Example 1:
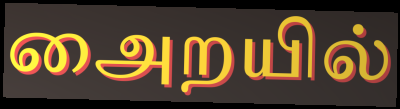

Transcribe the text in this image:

அைறயில்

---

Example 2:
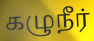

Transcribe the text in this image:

கழுநீர்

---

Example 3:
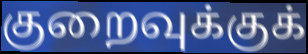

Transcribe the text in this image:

குறைவுக்குக்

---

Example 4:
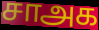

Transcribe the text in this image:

சாஅக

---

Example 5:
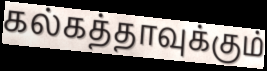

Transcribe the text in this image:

கல்கத்தாவுக்கும்